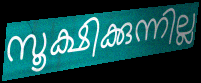
സൂക്ഷിക്കുന്നില്ല